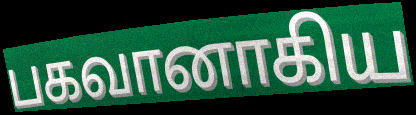
பகவானாகிய